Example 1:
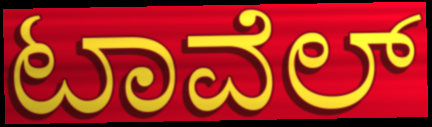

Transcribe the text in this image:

ಟಾವೆಲ್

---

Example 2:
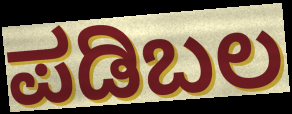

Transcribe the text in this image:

ಪಡಿಬಲ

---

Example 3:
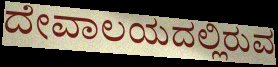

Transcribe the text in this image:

ದೇವಾಲಯದಲ್ಲಿರುವ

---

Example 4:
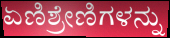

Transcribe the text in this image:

ಏಣಿಶ್ರೇಣಿಗಳನ್ನು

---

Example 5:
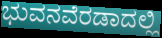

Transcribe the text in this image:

ಭುವನವೆರಡಾದಲ್ಲಿ